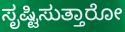
ಸೃಷ್ಟಿಸುತ್ತಾರೋ